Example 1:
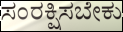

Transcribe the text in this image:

ಸಂರಕ್ಷಿಸಬೇಕು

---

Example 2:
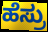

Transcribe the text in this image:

ಹೆಸ್ರು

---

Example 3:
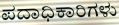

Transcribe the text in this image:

ಪದಾಧಿಕಾರಿಗಳು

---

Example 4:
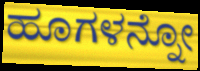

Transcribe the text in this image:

ಹೂಗಳನ್ನೋ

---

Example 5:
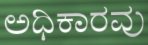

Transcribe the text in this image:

ಅಧಿಕಾರವು